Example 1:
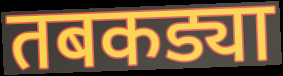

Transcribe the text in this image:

तबकड्या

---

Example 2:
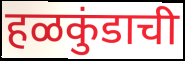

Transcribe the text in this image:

हळकुंडाची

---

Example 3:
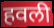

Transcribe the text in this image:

हवली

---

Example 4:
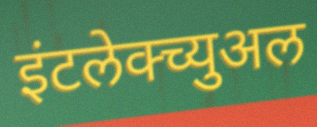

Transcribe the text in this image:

इंटलेक्च्युअल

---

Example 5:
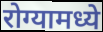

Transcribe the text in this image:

रोग्यामध्ये